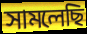
সামলেছি